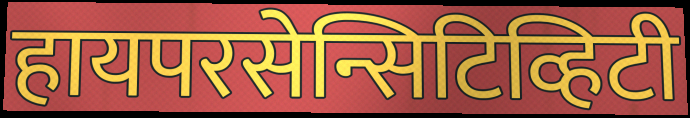
हायपरसेन्सिटिव्हिटी